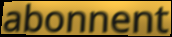
abonnent